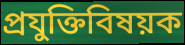
প্রযুক্তিবিষয়ক